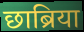
छाब्रिया